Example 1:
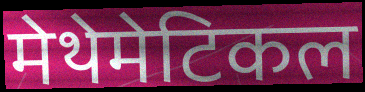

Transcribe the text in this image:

मेथेमेटिकल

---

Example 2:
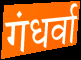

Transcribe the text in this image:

गंधर्वा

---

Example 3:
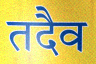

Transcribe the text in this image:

तदैव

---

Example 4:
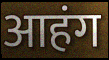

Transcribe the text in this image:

आहंग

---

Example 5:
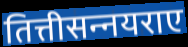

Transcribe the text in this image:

तित्तीसन्नयराए